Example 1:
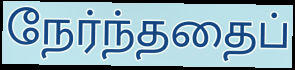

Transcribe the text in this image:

நேர்ந்ததைப்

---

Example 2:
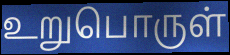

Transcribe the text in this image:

உறுபொருள்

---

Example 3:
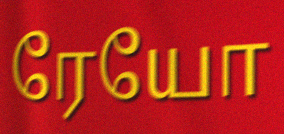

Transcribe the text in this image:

ரேயோ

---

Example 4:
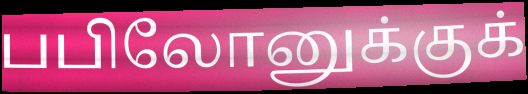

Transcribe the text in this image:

பபிலோனுக்குக்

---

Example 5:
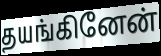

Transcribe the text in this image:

தயங்கினேன்